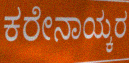
ಕರೇನಾಯ್ಕರ